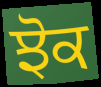
ਝੋਕ